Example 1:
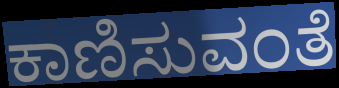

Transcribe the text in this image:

ಕಾಣಿಸುವಂತೆ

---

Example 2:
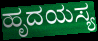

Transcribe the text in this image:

ಹೃದಯಸ್ಯ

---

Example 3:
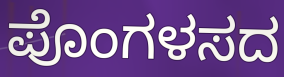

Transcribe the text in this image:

ಪೊಂಗಳಸದ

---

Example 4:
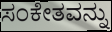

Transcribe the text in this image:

ಸಂಕೇತವನ್ನು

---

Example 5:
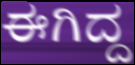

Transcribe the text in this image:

ಈಗಿದ್ದ